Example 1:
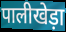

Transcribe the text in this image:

पालीखेड़ा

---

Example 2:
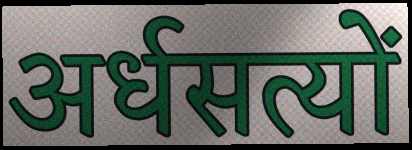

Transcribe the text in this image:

अर्धसत्यों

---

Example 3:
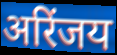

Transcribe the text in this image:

अरिंजय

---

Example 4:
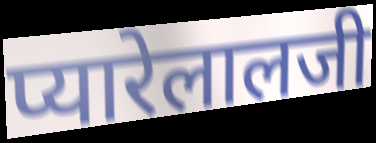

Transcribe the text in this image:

प्यारेलालजी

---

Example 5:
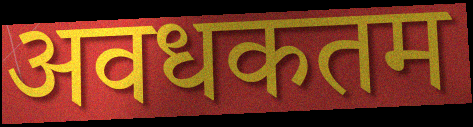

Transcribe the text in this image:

अवधकतम